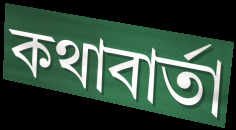
কথাবার্তা